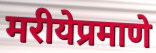
मरीयेप्रमाणे